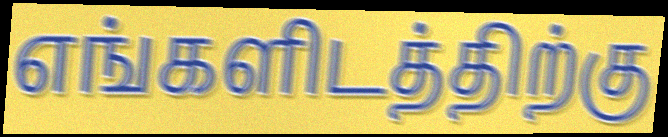
எங்களிடத்திற்கு